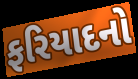
ફરિયાદનો